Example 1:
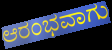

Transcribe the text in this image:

ಆರಂಭವಾಗು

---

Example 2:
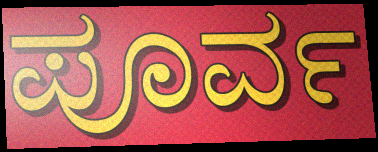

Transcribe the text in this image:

ಪೂರ್ವ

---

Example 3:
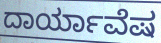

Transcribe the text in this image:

ದಾರ್ಯಾವೆಷ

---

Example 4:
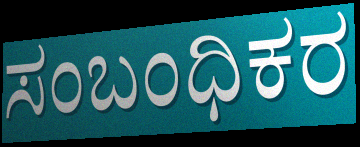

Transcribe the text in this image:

ಸಂಬಂಧಿಕರ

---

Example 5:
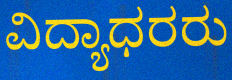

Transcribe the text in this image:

ವಿದ್ಯಾಧರರು